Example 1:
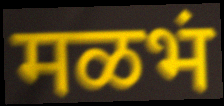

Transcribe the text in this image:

मळभं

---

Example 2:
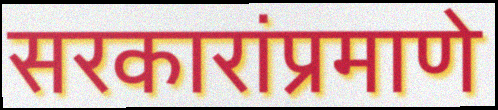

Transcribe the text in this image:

सरकारांप्रमाणे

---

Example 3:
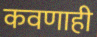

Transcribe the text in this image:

कवणाही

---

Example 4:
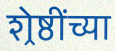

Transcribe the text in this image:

श्रेष्ठींच्या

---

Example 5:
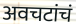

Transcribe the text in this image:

अवचटांचं